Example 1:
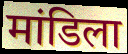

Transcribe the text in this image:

मांडिला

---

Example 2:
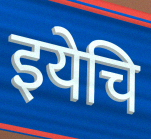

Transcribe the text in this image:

इयेचि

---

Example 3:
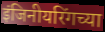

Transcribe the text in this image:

इंजिनीयरिंगच्या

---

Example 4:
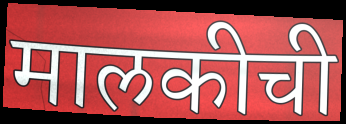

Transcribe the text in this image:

मालकीची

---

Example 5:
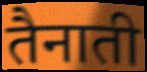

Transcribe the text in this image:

तैनाती